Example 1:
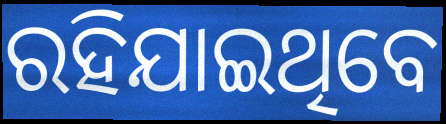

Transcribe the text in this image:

ରହିଯାଇଥିବେ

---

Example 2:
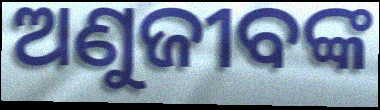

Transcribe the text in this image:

ଅଣୁଜୀବଙ୍କ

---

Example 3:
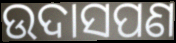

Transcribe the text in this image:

ଉଦାସପଣ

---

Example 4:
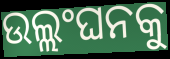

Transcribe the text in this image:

ଉଲ୍ଲଂଘନକୁ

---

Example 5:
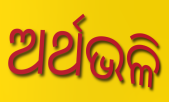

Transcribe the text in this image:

ଅର୍ଥଭଳି